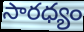
సారధ్యం